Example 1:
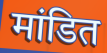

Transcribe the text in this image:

मांडित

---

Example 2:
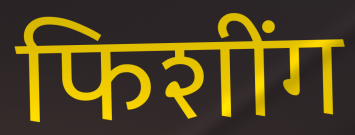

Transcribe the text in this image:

फिशींग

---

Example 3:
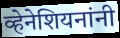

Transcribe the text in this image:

व्हेनेशियनांनी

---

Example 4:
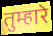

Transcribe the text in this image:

तुम्हारे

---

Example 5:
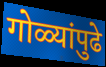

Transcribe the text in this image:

गोळ्यांपुढे